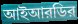
আইআরডির